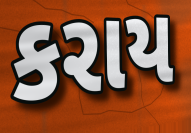
કરાય